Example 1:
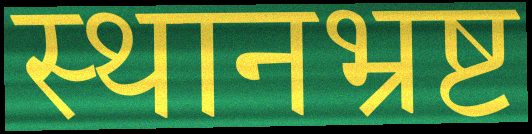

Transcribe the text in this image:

स्थानभ्रष्ट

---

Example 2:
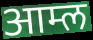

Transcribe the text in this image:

आम्ल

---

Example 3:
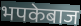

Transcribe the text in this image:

भपकेबाज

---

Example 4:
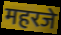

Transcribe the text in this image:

महरजे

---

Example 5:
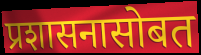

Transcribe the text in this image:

प्रशासनासोबत